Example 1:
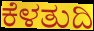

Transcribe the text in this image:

ಕೆಳತುದಿ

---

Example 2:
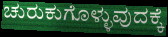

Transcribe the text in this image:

ಚುರುಕುಗೊಳ್ಳುವುದಕ್ಕೆ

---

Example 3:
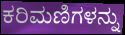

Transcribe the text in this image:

ಕರಿಮಣಿಗಳನ್ನು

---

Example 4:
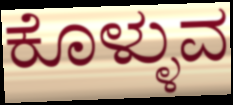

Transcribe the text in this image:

ಕೊಳ್ಳುವ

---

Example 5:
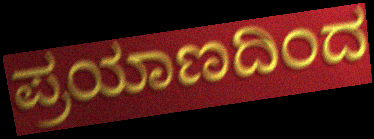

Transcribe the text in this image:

ಪ್ರಯಾಣದಿಂದ